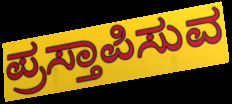
ಪ್ರಸ್ತಾಪಿಸುವ